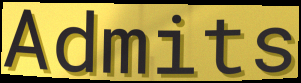
Admits